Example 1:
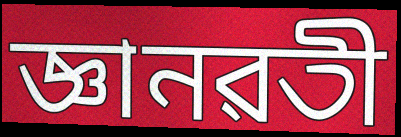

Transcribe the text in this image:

জ্ঞানৱতী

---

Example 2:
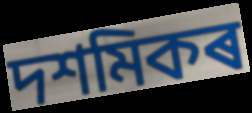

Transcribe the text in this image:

দশমিকৰ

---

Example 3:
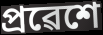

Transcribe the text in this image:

প্ৰৱেশে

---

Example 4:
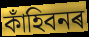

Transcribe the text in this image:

কাঁহিবনৰ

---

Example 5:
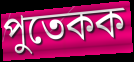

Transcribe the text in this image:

পুতেকক